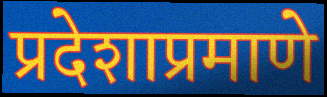
प्रदेशाप्रमाणे